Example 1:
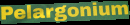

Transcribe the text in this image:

Pelargonium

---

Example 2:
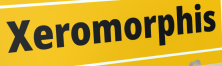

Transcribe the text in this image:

Xeromorphis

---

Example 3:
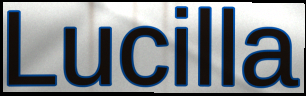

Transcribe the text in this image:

Lucilla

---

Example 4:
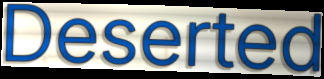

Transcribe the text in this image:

Deserted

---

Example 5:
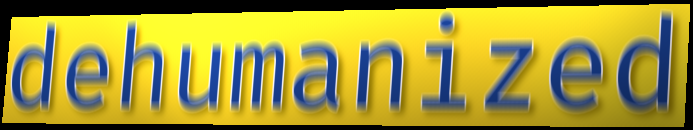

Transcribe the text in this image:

dehumanized